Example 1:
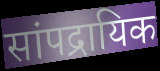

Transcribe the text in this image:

सांपद्रायिक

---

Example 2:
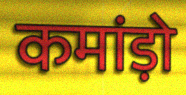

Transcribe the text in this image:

कमांड़ो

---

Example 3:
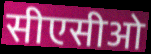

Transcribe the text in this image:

सीएसीओ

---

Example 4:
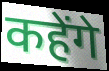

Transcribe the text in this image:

कहेंगे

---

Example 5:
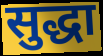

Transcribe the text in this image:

सुद्धा